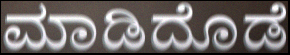
ಮಾಡಿದೊಡೆ